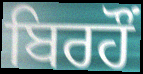
ਬਿਰਹੌਂ